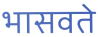
भासवते